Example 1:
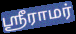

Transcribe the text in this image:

ஶ்ரீராமர்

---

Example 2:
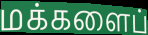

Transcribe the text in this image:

மக்களைப்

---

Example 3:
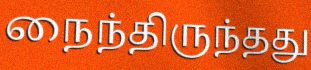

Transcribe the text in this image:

நைந்திருந்தது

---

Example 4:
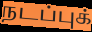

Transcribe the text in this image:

நடப்புக்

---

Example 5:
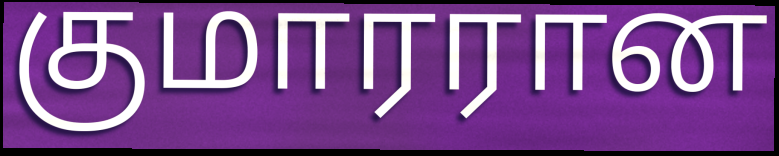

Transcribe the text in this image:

குமாரரான